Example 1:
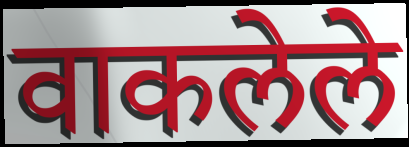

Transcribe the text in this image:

वाकलेले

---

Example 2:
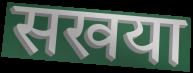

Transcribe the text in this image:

सखया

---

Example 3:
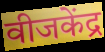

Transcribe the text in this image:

वीजकेंद्र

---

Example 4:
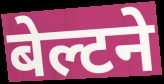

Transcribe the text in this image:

बेल्टने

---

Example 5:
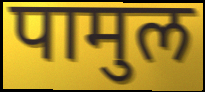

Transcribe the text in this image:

पामुल